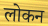
लोकन